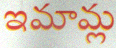
ఇమామ్ల